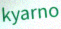
kyarno